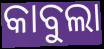
କାବୁଲା